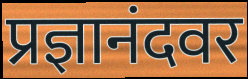
प्रज्ञानंदवर